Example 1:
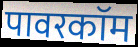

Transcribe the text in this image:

पावरकॉम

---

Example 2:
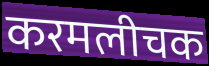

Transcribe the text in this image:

करमलीचक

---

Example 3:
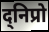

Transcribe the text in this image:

द्निप्रो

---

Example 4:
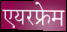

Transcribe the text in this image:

एयरफ्रेम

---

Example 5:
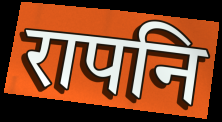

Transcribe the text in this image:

रापनि